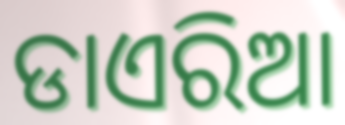
ଡାଏରିଆ